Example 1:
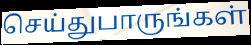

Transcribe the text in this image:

செய்துபாருங்கள்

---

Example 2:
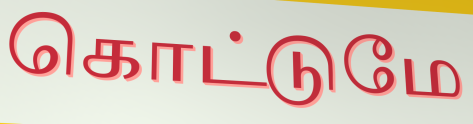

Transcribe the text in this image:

கொட்டுமே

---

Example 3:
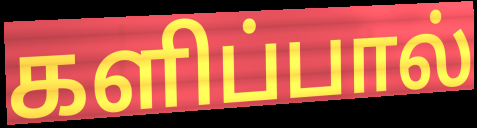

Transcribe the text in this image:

களிப்பால்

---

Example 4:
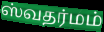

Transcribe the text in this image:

ஸ்வதர்மம்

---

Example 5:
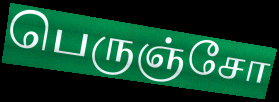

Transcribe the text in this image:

பெருஞ்சோ